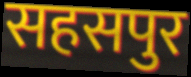
सहसपुर